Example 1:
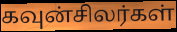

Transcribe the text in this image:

கவுன்சிலர்கள்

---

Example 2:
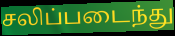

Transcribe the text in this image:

சலிப்படைந்து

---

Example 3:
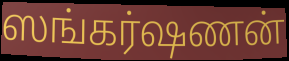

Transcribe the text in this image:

ஸங்கர்ஷணன்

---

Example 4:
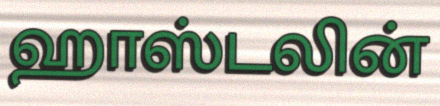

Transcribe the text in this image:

ஹாஸ்டலின்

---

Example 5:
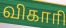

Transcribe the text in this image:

விகாரி